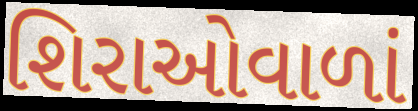
શિરાઓવાળાં